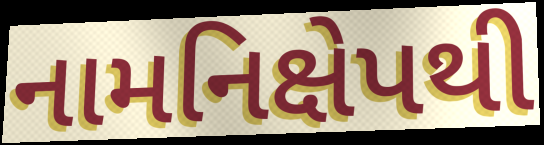
નામનિક્ષેપથી